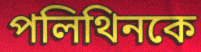
পলিথিনকে